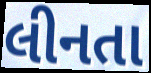
લીનતા